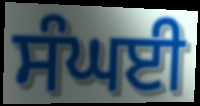
ਸੰਘਈ